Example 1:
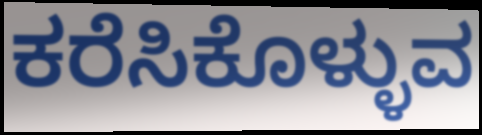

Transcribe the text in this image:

ಕರೆಸಿಕೊಳ್ಳುವ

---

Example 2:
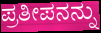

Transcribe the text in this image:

ಪ್ರತೀಪನನ್ನು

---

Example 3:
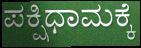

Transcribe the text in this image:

ಪಕ್ಷಿಧಾಮಕ್ಕೆ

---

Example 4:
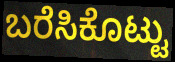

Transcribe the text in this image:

ಬರೆಸಿಕೊಟ್ಟು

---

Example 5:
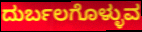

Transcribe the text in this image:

ದುರ್ಬಲಗೊಳ್ಳುವ